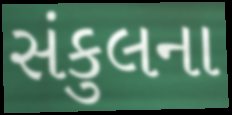
સંકુલના